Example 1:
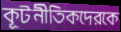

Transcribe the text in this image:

কূটনীতিকদেরকে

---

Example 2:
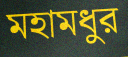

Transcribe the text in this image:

মহামধুর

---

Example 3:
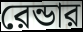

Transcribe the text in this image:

রেন্ডার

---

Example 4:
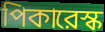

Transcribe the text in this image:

পিকারেস্ক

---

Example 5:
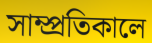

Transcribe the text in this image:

সাম্প্রতিকালে